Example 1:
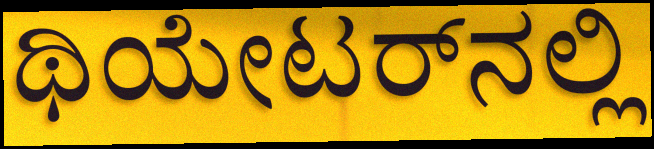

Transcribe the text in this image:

ಥಿಯೇಟರ್‌ನಲ್ಲಿ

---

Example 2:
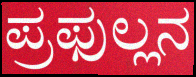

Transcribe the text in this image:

ಪ್ರಫುಲ್ಲನ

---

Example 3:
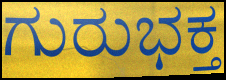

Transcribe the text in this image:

ಗುರುಭಕ್ತ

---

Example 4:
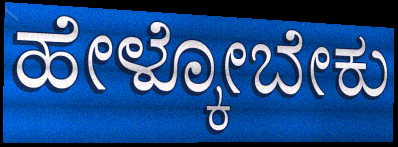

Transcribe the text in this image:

ಹೇಳ್ಕೋಬೇಕು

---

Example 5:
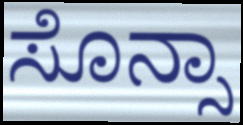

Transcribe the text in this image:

ಸೊನ್ಸಾ